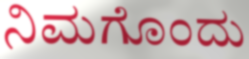
ನಿಮಗೊಂದು